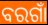
ବରଗାଁ